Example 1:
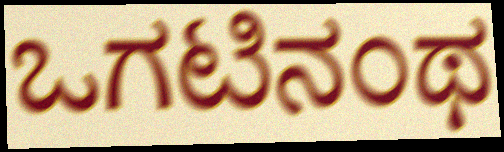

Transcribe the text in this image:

ಒಗಟಿನಂಥ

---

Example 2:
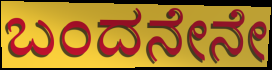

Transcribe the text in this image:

ಬಂದನೇನೇ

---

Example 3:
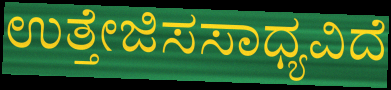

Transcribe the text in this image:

ಉತ್ತೇಜಿಸಸಾಧ್ಯವಿದೆ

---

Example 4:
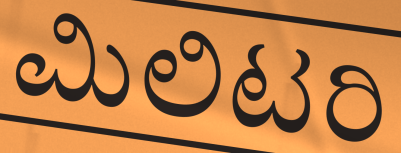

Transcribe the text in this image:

ಮಿಲಿಟರಿ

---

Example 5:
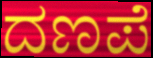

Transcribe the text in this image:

ದಣಪೆ